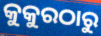
କୁକୁରଠାରୁ